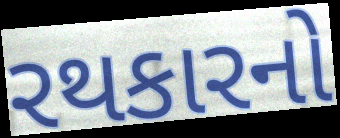
રથકારનો